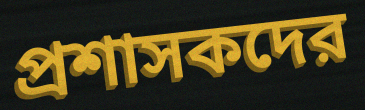
প্রশাসকদের